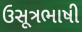
ઉસૂત્રભાષી